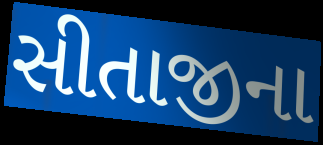
સીતાજીના